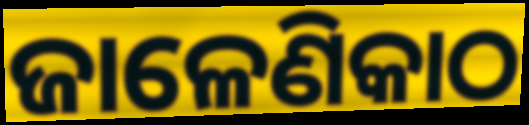
ଜାଳେଣିକାଠ